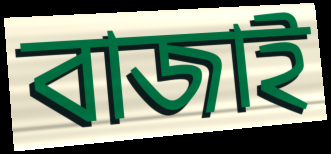
বাজাই